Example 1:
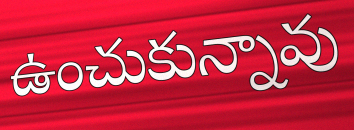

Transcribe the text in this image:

ఉంచుకున్నావు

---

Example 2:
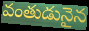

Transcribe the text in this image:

వంతుడునైన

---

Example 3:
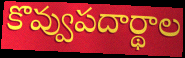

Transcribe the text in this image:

కొవ్వుపదార్థాల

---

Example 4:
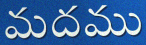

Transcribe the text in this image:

మదము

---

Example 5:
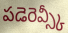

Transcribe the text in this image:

పడెరెవ్స్కీ